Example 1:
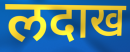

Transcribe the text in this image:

लदाख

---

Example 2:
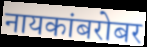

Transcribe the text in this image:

नायकांबरोबर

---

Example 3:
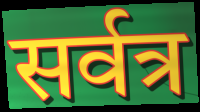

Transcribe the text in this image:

सर्वत्र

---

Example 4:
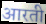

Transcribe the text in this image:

आरती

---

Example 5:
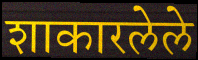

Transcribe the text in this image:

शाकारलेले